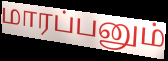
மாரப்பனும்